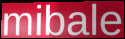
mibale